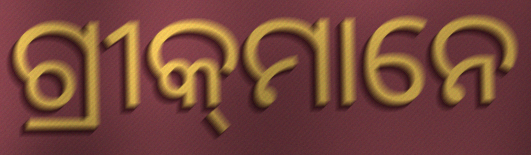
ଗ୍ରୀକ୍‍ମାନେ